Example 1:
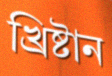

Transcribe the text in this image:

খ্রিষ্টান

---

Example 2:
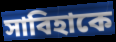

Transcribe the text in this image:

সাবিহাকে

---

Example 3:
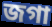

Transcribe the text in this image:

জগা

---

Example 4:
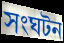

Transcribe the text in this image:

সংঘটন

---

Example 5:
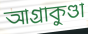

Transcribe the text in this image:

আগ্রাকুণ্ডা